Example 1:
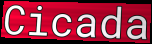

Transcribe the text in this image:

Cicada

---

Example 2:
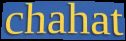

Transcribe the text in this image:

chahat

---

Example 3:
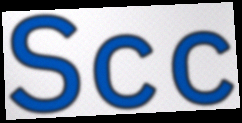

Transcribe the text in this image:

Scc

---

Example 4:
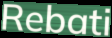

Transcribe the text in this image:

Rebati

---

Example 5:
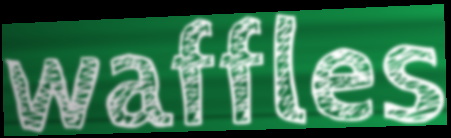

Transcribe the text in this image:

waffles